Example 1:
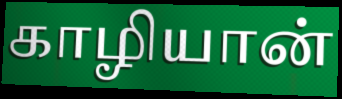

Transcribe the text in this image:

காழியான்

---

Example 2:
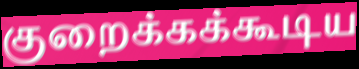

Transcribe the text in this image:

குறைக்கக்கூடிய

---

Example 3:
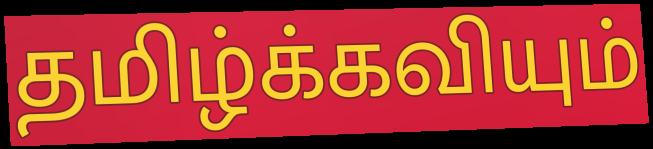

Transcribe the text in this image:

தமிழ்க்கவியும்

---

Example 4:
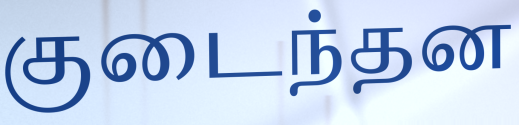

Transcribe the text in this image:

குடைந்தன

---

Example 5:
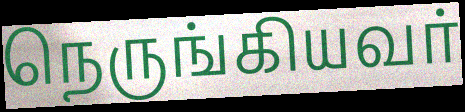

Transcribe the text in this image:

நெருங்கியவர்